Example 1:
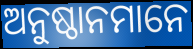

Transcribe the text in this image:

ଅନୁଷ୍ଠାନମାନେ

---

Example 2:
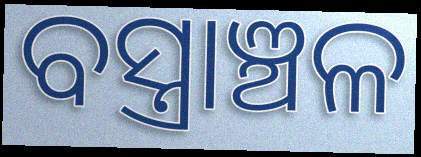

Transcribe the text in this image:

ବସ୍ତ୍ରାଞ୍ଚଳ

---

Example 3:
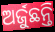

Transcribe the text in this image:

ଅର୍ଜୁଛନ୍ତି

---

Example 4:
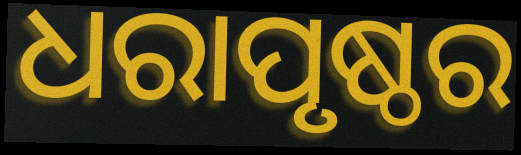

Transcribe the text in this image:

ଧରାପୃଷ୍ଠର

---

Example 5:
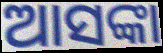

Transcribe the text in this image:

ଆସଙ୍କା